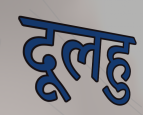
दूलहु